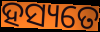
ହସ୍ୟତେ